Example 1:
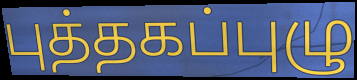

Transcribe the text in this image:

புத்தகப்புழு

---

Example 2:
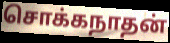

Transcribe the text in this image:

சொக்கநாதன்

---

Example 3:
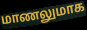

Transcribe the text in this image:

மாணலுமாக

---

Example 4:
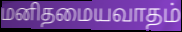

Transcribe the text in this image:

மனிதமையவாதம்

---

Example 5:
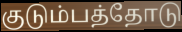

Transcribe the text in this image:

குடும்பத்தோடு